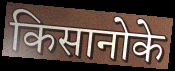
किसानोके